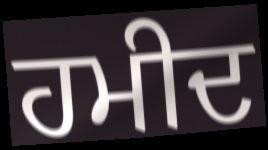
ਹਮੀਦ